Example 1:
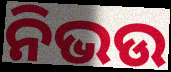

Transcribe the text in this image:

ନିଭଉ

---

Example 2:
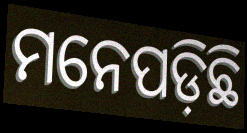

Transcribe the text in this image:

ମନେପଡ଼ିଛି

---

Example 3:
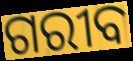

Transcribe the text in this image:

ଗରୀବ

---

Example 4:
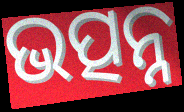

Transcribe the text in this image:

ଭତ୍ପନ୍ନ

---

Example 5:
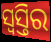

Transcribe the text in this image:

ସ୍ୱସ୍ତିର